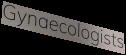
Gynaecologists